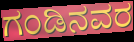
ಗಂಡಿನವರ